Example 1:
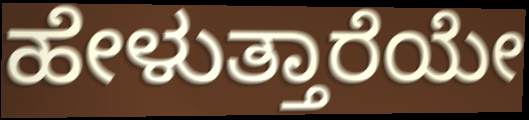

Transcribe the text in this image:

ಹೇಳುತ್ತಾರೆಯೇ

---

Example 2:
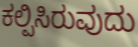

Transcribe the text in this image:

ಕಲ್ಪಿಸಿರುವುದು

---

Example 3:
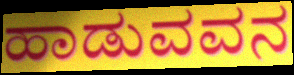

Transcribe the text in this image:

ಹಾಡುವವನ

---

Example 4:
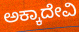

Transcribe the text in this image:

ಅಕ್ಕಾದೇವಿ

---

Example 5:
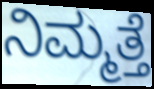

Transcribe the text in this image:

ನಿಮ್ಮತ್ತೆ